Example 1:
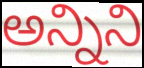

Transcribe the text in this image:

అన్నిని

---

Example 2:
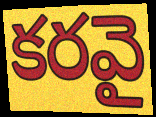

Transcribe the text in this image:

కరవై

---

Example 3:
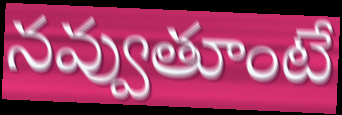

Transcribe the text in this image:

నవ్వుతూంటే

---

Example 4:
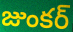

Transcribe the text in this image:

జుంకర్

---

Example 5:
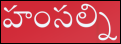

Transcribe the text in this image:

హంసల్ని